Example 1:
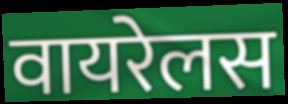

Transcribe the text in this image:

वायरेलस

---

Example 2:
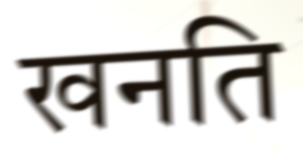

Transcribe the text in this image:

खनति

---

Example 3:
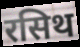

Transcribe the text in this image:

रसिथ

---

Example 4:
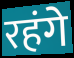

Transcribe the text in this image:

रहंगे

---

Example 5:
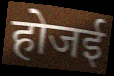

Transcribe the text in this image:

होजई